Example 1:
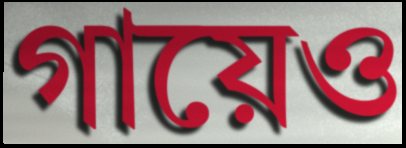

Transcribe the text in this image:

গায়েও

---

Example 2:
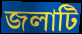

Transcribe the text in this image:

জলাটি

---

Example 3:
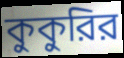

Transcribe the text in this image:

কুকুরির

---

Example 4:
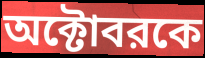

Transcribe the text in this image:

অক্টোবরকে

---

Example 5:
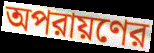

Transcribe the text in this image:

অপরায়ণের